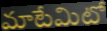
మాటేమిటో